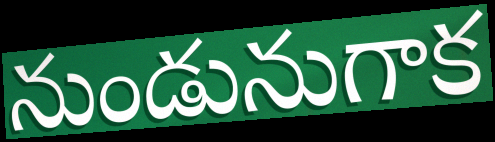
నుండునుగాక